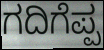
ಗದಿಗೆಪ್ಪ